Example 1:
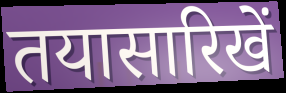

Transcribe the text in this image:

तयासारिखें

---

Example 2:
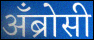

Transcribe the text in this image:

अँब्रोसी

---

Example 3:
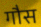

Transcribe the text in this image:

गौस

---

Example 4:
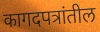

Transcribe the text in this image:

कागदपत्रांतील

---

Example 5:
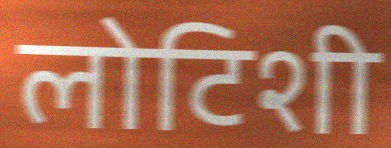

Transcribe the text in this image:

लोटिशी